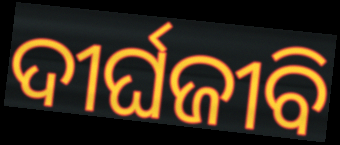
ଦୀର୍ଘଜୀବି